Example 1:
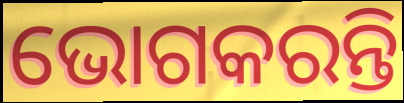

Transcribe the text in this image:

ଭୋଗକରନ୍ତି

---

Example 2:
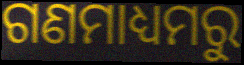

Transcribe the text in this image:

ଗଣମାଧ୍ୟମରୁ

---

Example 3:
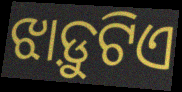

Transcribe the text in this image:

ଝାଡ଼ୁଟିଏ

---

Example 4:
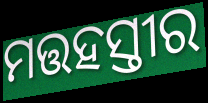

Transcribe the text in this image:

ମତ୍ତହସ୍ତୀର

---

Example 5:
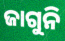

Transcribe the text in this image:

ଜାଗୁନି